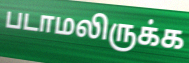
படாமலிருக்க